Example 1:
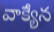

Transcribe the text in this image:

వాక్యేన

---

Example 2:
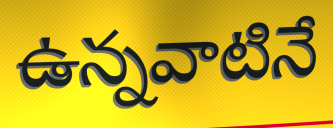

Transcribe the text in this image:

ఉన్నవాటినే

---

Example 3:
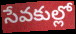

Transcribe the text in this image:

సేవకుల్లో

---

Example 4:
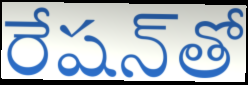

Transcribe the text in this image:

రేషన్‌తో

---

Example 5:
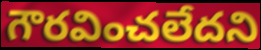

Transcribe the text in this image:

గౌరవించలేదని